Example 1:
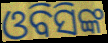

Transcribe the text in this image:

ଓବିସିଙ୍କ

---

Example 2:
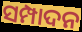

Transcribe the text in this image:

ସମ୍ପାଦନ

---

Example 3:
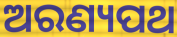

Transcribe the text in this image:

ଅରଣ୍ୟପଥ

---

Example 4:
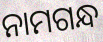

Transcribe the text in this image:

ନାମଗନ୍ଧ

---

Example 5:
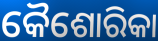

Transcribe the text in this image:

କୈଶୋରିକା